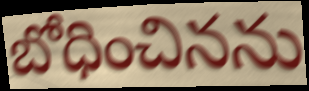
బోధించినను